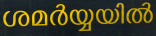
ശമർയ്യയിൽ